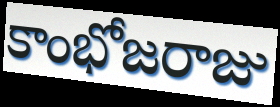
కాంభోజరాజు